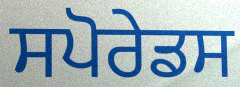
ਸਪੋਰੇਡਸ